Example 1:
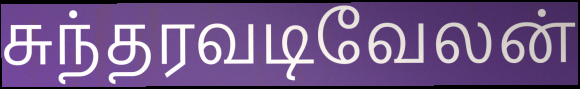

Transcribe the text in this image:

சுந்தரவடிவேலன்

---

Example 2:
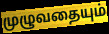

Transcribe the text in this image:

முழுவதையும்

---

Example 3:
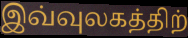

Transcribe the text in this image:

இவ்வுலகத்திற்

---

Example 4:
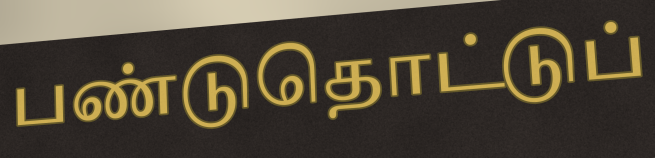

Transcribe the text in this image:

பண்டுதொட்டுப்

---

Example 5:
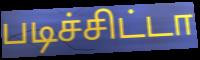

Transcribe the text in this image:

படிச்சிட்டா